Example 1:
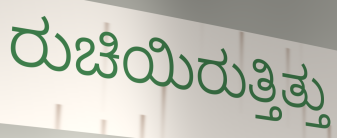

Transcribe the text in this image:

ರುಚಿಯಿರುತ್ತಿತ್ತು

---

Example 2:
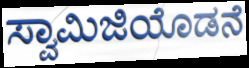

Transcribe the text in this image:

ಸ್ವಾಮಿಜಿಯೊಡನೆ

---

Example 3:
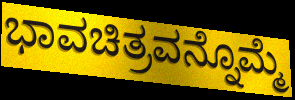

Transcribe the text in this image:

ಭಾವಚಿತ್ರವನ್ನೊಮ್ಮೆ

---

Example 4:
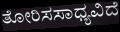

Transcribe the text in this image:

ತೋರಿಸಸಾಧ್ಯವಿದೆ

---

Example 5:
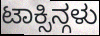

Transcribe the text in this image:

ಟಾಕ್ಸಿನ್ಗಳು